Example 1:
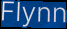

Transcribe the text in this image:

Flynn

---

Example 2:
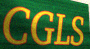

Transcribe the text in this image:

CGLS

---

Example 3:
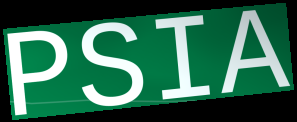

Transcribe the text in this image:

PSIA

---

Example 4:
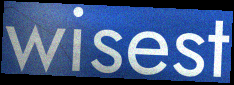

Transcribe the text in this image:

wisest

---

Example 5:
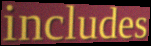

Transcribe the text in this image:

includes